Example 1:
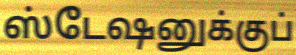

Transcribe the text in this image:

ஸ்டேஷனுக்குப்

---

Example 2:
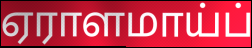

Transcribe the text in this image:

ஏராளமாய்ப்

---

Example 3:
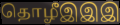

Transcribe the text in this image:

தொழீஇஇஇ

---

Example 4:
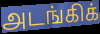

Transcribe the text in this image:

அடங்கிக்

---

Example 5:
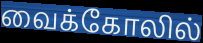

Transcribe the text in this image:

வைக்கோலில்